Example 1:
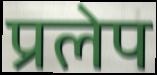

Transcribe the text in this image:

प्रलेप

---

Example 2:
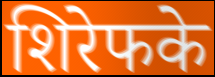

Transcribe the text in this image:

शिरेफके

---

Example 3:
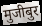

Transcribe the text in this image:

मुजीबुर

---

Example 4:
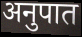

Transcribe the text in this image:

अनुपात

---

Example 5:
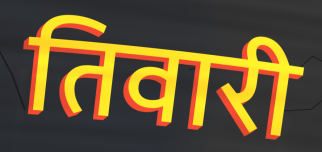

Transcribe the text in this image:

तिवारी